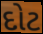
દોટ